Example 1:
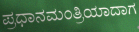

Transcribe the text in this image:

ಪ್ರಧಾನಮಂತ್ರಿಯಾದಾಗ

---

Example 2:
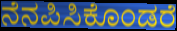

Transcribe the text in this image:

ನೆನಪಿಸಿಕೊಂಡರೆ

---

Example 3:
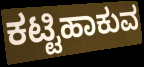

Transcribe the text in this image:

ಕಟ್ಟಿಹಾಕುವ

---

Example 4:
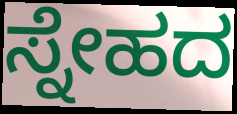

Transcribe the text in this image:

ಸ್ನೇಹದ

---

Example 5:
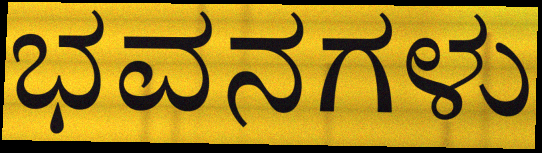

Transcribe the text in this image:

ಭವನಗಳು